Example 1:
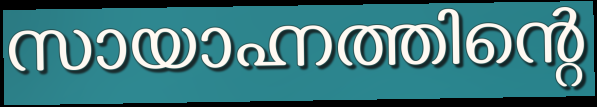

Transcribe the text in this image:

സായാഹ്നത്തിന്റെ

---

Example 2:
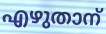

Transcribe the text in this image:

എഴുതാന്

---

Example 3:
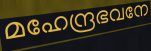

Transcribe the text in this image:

മഹേന്ദ്രഭവനേ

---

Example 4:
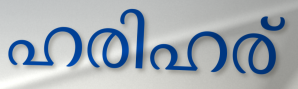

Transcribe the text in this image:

ഹരിഹര്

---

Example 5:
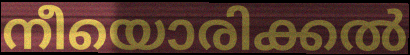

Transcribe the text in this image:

നീയൊരിക്കൽ